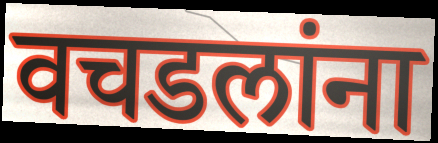
वचडलांना